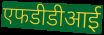
एफडीडीआई